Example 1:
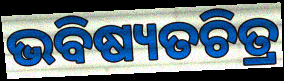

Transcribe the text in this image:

ଭବିଷ୍ୟତଚିତ୍ର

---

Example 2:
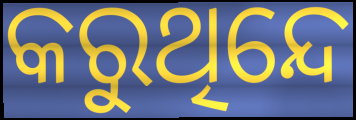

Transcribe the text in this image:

କରୁଥିନ୍ଦେ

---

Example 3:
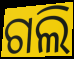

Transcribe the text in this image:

ଗଲି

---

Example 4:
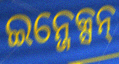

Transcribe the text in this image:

ଇନ୍ଜେକ୍ସନ୍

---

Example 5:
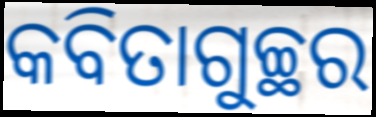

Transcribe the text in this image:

କବିତାଗୁଚ୍ଛର